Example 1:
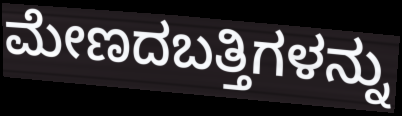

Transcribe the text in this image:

ಮೇಣದಬತ್ತಿಗಳನ್ನು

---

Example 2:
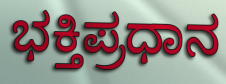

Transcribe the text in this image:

ಭಕ್ತಿಪ್ರಧಾನ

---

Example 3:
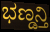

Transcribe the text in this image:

ಭಣ್ಡನ್ತಿ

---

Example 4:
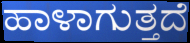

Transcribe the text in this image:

ಹಾಳಾಗುತ್ತದೆ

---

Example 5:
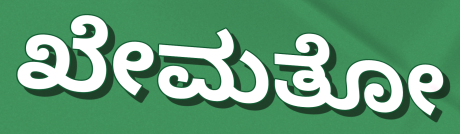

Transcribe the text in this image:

ಖೇಮತೋ